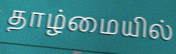
தாழ்மையில்